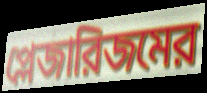
প্লেজারিজমের